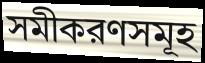
সমীকরণসমূহ